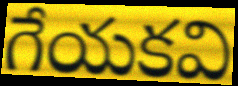
గేయకవి